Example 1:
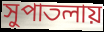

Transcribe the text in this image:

সুপাতলায়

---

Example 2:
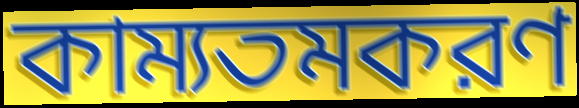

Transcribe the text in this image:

কাম্যতমকরণ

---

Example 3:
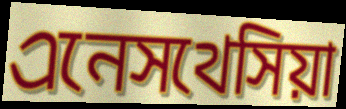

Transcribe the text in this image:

এনেসথেসিয়া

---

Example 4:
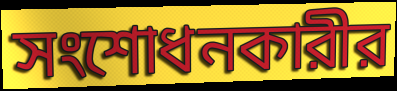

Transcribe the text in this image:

সংশোধনকারীর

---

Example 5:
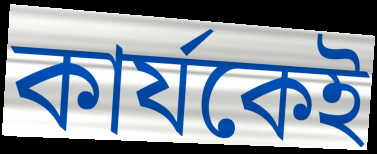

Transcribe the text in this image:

কার্যকেই